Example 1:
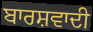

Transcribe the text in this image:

ਬਾਰਸ਼ਵਾਦੀ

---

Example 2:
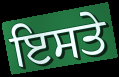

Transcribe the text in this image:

ਇਸਤੇ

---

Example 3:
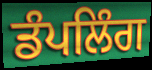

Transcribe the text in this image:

ਡੰਪਲਿੰਗ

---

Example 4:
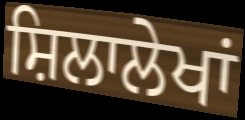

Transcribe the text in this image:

ਸ਼ਿਲਾਲੇਖਾਂ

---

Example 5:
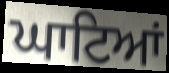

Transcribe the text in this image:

ਘਾਟਿਆਂ